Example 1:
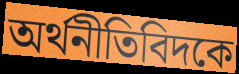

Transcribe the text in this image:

অর্থনীতিবিদকে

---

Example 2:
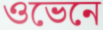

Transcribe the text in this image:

ওভেনে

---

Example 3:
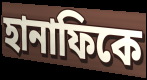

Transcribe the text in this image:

হানাফিকে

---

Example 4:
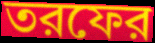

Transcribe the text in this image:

তরফের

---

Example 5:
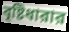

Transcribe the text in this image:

বৃষ্টিধারার